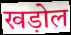
खड़ोल